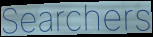
Searchers